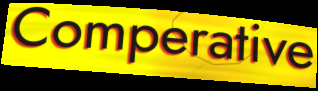
Comperative